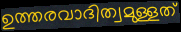
ഉത്തരവാദിത്വമുള്ളത്